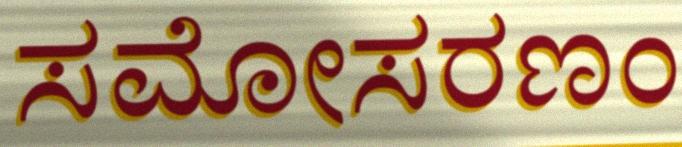
ಸಮೋಸರಣಂ